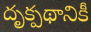
దృక్పథానికీ